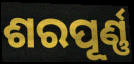
ଶରପୂର୍ଣ୍ଣ